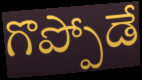
గొప్పోడే